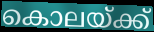
കൊലയ്ക്ക്